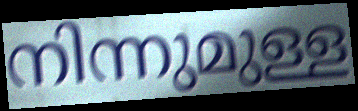
നിന്നുമുള്ള